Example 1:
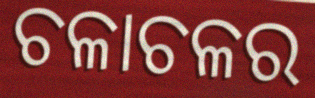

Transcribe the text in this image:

ଚଳାଚଳର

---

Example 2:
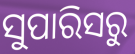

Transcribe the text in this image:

ସୁପାରିସରୁ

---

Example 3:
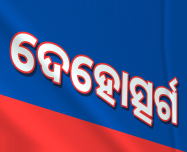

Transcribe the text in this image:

ଦେହୋତ୍ସର୍ଗ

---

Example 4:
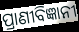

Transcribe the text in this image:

ପ୍ରାଣୀବିଜ୍ଞାନୀ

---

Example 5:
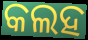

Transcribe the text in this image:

କଲହ